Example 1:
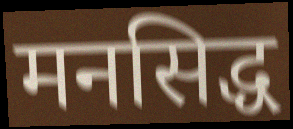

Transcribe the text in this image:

मनसिद्ध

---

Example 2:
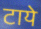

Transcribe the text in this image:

टाये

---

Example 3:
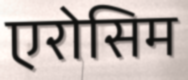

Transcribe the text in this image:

एरोसिम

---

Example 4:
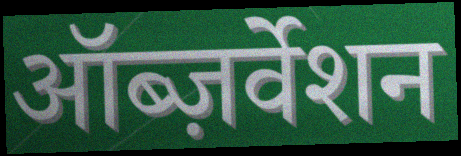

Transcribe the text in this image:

ऑब्ज़र्वेशन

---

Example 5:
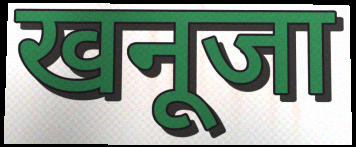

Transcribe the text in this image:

खनूजा